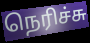
நெரிச்சு